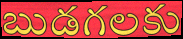
బుడగలకు